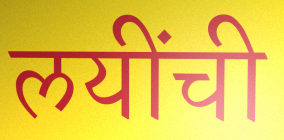
लयींची